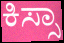
ಕಿಸ್ಸಾ